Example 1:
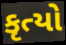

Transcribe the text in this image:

કૃત્યો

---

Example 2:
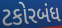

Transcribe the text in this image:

ટકોરબંધ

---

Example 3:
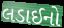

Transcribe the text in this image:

લડાઈનો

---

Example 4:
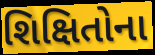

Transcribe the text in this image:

શિક્ષિતોના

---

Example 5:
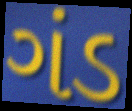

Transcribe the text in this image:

ગંડ